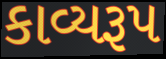
કાવ્યરૂપ